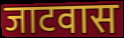
जाटवास